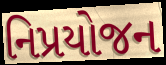
નિપ્રયોજન